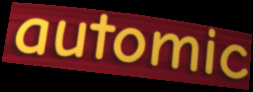
automic